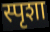
स्पृशा